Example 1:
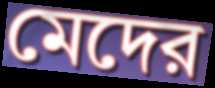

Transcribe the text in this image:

মেদের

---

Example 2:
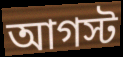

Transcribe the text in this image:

আগস্ট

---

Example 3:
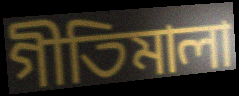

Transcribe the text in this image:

গীতিমালা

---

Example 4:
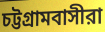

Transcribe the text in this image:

চট্টগ্রামবাসীরা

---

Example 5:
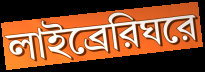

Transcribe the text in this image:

লাইব্রেরিঘরে